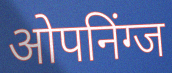
ओपनिंग्ज